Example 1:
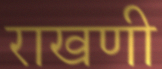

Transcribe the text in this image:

राखणी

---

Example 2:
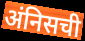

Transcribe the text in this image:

अंनिसची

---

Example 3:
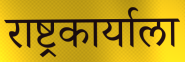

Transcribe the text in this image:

राष्ट्रकार्याला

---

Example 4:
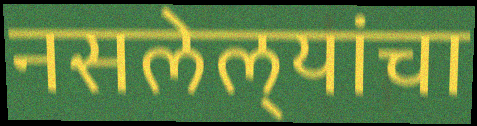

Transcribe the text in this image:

नसलेल्यांचा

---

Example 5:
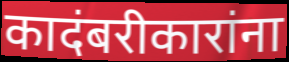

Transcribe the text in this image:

कादंबरीकारांना